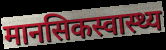
मानसिकस्वास्थ्य